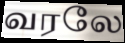
வரலே